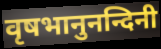
वृषभानुनन्दिनी